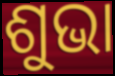
ଶୁଭା